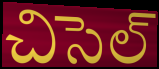
చిసెల్